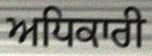
ਅਧਿਕਾਰੀ